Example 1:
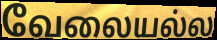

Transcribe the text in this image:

வேலையல்ல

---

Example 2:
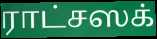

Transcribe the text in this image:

ராட்சஸக்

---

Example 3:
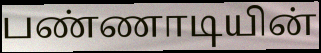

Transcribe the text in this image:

பண்ணாடியின்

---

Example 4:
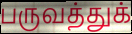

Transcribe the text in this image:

பருவத்துக்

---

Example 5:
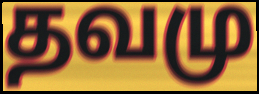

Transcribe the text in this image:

தவமு